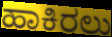
ಹಾಕಿರಲು